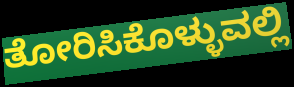
ತೋರಿಸಿಕೊಳ್ಳುವಲ್ಲಿ